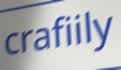
crafiily